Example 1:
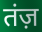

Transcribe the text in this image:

तंज़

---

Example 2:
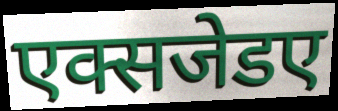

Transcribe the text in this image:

एक्सजेडए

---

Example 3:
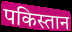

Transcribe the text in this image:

पकिस्तान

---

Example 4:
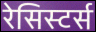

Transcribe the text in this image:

रेसिस्टर्स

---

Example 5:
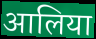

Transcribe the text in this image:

आलिया